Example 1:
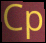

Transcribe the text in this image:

Cp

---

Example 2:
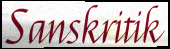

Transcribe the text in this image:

Sanskritik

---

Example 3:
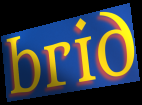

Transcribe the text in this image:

brid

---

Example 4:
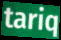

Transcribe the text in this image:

tariq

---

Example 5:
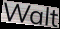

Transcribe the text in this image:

Walt